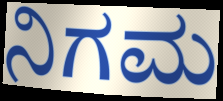
ನಿಗಮ